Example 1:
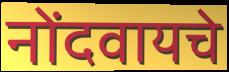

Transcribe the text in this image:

नोंदवायचे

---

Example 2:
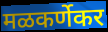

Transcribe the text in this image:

मळकर्णेकर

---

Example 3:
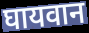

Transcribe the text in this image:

घायवान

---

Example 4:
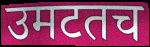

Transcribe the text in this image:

उमटतच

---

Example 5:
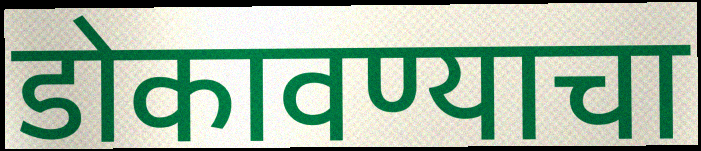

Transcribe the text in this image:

डोकावण्याचा